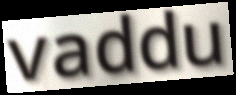
vaddu